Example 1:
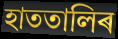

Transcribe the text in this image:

হাততালিৰ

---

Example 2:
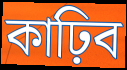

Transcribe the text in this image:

কাঢ়িব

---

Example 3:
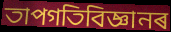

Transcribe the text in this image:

তাপগতিবিজ্ঞানৰ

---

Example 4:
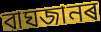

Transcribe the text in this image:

বাঘজানৰ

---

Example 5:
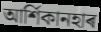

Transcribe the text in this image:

আৰ্শিকানহাৰ